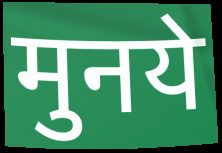
मुनये